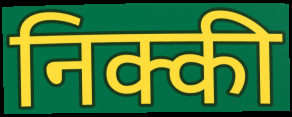
निक्की